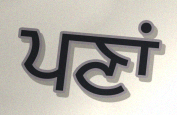
ਪਣਾਂ